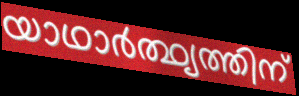
യാഥാർത്ഥ്യത്തിന്